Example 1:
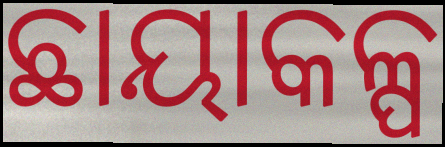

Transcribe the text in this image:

ଛାୟାକଳ୍ପ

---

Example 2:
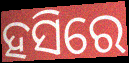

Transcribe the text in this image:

ହସିରେ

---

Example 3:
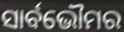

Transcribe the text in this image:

ସାର୍ବଭୌମର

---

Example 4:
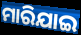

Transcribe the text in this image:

ମାରିଯାଇ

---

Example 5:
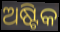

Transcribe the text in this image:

ଅଷ୍ଟିକ